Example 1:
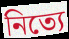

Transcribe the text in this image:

নিত্যে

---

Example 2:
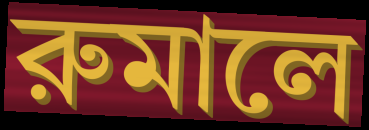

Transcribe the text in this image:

রুমালে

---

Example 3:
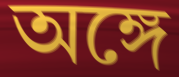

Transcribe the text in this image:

অঙ্গে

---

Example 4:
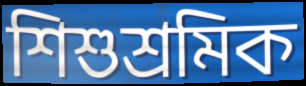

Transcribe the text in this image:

শিশুশ্রমিক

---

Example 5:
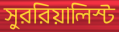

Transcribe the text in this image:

সুররিয়ালিস্ট